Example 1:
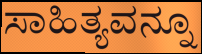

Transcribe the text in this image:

ಸಾಹಿತ್ಯವನ್ನೂ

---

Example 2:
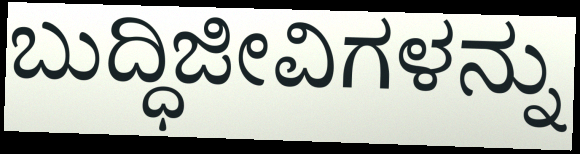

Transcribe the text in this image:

ಬುದ್ಧಿಜೀವಿಗಳನ್ನು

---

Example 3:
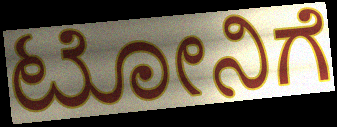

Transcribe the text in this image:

ಟೋನಿಗೆ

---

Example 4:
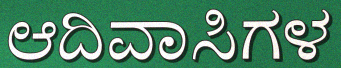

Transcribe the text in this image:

ಆದಿವಾಸಿಗಳ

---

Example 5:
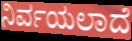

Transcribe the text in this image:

ನಿರ್ವಯಲಾದೆ